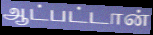
ஆட்பட்டான்